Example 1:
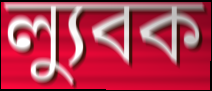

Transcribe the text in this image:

ল্যুবক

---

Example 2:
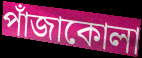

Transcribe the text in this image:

পাঁজাকোলা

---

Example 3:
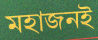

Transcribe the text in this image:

মহাজনই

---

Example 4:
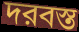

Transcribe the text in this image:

দরবস্ত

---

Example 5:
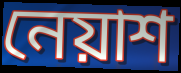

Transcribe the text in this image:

নেয়াশ